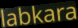
labkara